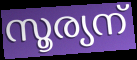
സൂര്യന്